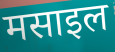
मसाइल